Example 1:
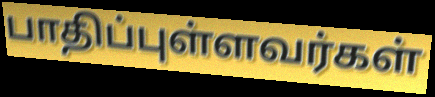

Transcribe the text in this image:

பாதிப்புள்ளவர்கள்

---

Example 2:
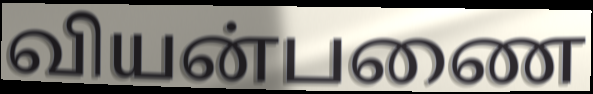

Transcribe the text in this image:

வியன்பணை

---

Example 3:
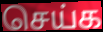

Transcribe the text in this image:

செய்க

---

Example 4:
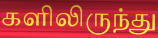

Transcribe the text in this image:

களிலிருந்து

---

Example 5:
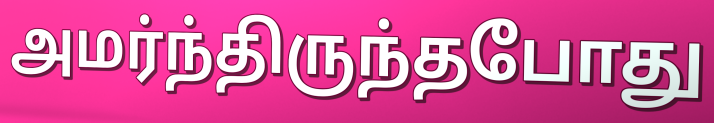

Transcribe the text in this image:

அமர்ந்திருந்தபோது